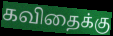
கவிதைக்கு